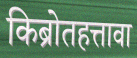
किब्रोतहत्तावा